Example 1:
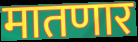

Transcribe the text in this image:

मातणार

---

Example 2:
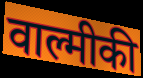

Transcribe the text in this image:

वाल्मीकी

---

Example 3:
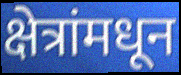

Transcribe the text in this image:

क्षेत्रांमधून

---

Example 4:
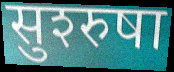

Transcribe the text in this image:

सुश्रुषा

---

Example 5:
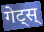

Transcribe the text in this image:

गेट्स्